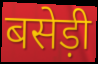
बसेड़ी